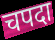
चपदा